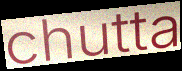
chutta